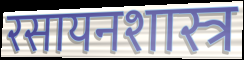
रसायनशास्त्र